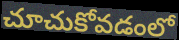
చూచుకోవడంలో